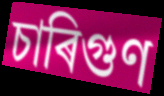
চাৰিগুণ